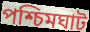
পশ্চিমঘাট